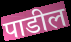
पाडील